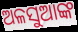
ଅଳସୁଆଙ୍କ